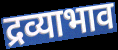
द्रव्याभाव